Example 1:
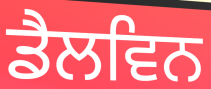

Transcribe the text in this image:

ਡੈਲਵਿਨ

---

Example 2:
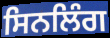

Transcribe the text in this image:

ਸਿਨਲਿੰਗ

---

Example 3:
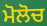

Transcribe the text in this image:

ਮੋਲੋਚ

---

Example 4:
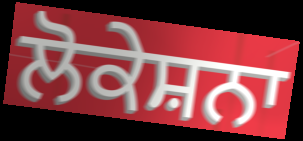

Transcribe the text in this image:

ਲੋਕੇਸ਼ਨਾ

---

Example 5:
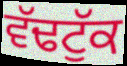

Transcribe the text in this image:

ਵੱਢਟੁੱਕ